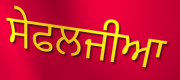
ਸੇਫਲਜੀਆ